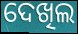
ଦେଖିଲ